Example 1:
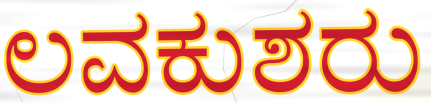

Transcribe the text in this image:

ಲವಕುಶರು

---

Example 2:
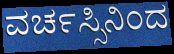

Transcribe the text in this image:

ವರ್ಚಸ್ಸಿನಿಂದ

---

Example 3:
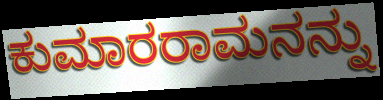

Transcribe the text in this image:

ಕುಮಾರರಾಮನನ್ನು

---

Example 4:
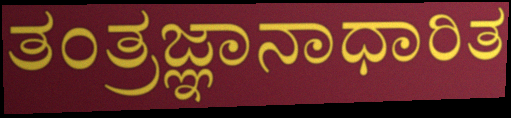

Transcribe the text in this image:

ತಂತ್ರಜ್ಞಾನಾಧಾರಿತ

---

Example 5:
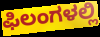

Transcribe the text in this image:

ಫಿಲಂಗಳಲ್ಲಿ